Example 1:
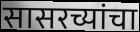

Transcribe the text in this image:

सासरच्यांचा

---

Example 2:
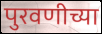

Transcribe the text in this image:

पुरवणीच्या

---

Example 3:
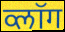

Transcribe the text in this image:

व्लॉग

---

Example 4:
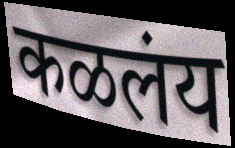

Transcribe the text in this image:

कळलंय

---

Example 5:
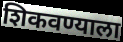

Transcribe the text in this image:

शिकवण्याला